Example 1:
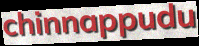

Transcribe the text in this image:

chinnappudu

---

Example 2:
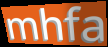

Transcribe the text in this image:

mhfa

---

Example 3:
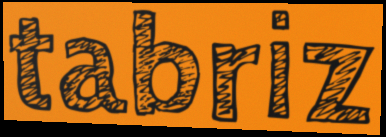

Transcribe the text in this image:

tabriz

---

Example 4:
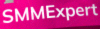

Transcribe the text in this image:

SMMExpert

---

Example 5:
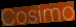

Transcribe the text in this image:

Cosimo